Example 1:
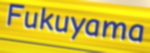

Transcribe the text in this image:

Fukuyama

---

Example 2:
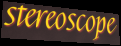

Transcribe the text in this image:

stereoscope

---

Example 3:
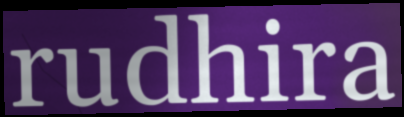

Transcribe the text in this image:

rudhira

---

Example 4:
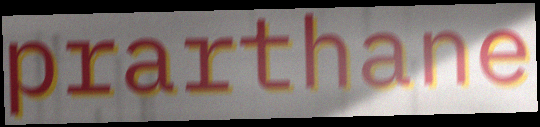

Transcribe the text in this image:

prarthane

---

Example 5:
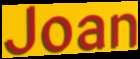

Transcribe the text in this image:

Joan